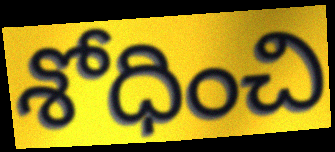
శోధించి